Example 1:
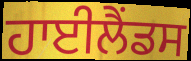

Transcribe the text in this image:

ਹਾਈਲੈਂਡਸ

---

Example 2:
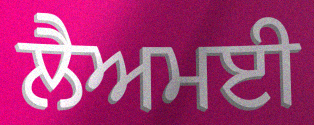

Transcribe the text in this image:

ਲੈਅਮਈ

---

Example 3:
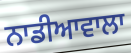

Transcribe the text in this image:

ਨਾਡੀਆਵਾਲਾ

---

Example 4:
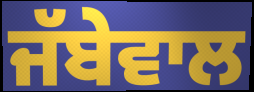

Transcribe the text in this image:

ਜੱਬੇਵਾਲ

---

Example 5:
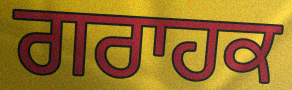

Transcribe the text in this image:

ਗਰਾਹਕ